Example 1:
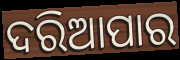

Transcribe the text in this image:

ଦରିଆପାର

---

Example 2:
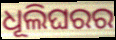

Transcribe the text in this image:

ଧୂଲିଘରର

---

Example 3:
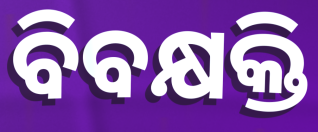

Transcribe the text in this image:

ବିବକ୍ଷକ୍ତି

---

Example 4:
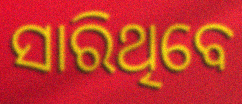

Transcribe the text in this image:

ସାରିଥିବେ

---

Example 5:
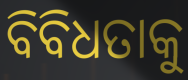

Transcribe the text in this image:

ବିବିଧତାକୁ